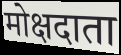
मोक्षदाता